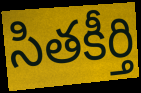
సితకీర్తి